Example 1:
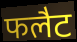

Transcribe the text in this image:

फलैट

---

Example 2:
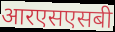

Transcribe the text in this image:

आरएसएसबी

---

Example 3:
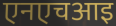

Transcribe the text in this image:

एनएचआइ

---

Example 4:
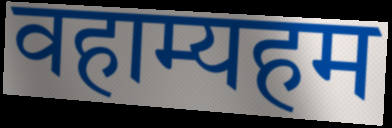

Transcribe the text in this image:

वहाम्यहम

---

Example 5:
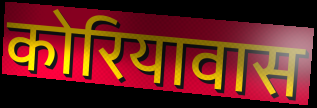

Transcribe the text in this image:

कोरियावास